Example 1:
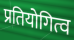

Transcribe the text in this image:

प्रतियोगित्व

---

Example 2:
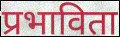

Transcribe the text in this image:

प्रभाविता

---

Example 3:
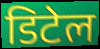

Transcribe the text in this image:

डिटेल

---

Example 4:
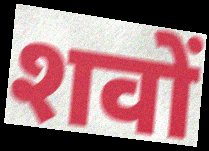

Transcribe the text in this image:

शवों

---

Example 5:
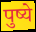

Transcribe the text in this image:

पुष्ये